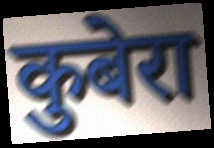
कुबेरा